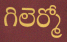
గిలెర్మో